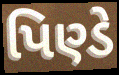
પિણ્ડે